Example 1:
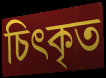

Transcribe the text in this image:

চিৎকৃত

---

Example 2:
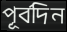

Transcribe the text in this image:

পূর্বদিন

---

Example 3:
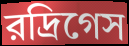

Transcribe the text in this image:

রদ্রিগেস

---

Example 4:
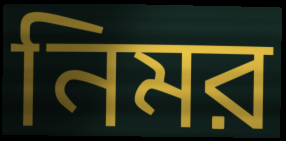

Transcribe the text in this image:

নিমর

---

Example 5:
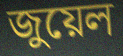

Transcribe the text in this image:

জুয়েল